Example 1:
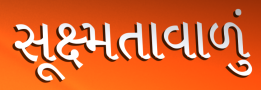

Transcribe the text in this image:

સૂક્ષ્મતાવાળું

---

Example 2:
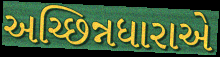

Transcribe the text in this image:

અચ્છિન્નધારાએ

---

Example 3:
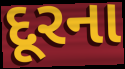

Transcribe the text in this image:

દૂરના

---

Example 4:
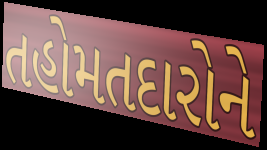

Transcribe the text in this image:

તહોમતદારોને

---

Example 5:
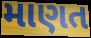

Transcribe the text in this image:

માણત